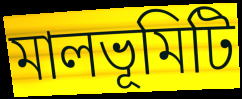
মালভূমিটি